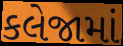
કલેજામાં